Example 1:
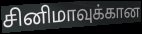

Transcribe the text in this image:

சினிமாவுக்கான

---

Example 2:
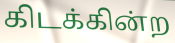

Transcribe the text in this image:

கிடக்கின்ற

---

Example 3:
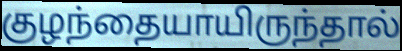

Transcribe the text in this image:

குழந்தையாயிருந்தால்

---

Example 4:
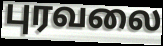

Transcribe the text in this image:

புரவலை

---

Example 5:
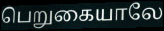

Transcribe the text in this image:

பெறுகையாலே